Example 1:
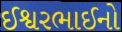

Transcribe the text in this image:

ઈશ્વરભાઈનો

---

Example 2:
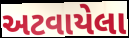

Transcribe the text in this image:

અટવાયેલા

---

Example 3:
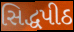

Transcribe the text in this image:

સિદ્ધપીઠ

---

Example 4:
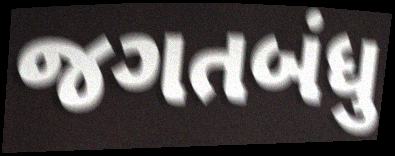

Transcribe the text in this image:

જગતબંધુ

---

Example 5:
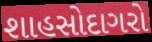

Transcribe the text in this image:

શાહસોદાગરો